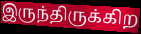
இருந்திருக்கிற